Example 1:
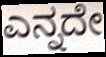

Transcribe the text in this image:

ಎನ್ನದೇ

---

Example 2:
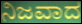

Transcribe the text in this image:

ನಿಜವಾದ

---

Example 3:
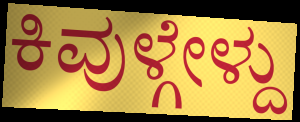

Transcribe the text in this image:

ಕಿವುಳ್ಗೇಳ್ದು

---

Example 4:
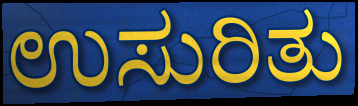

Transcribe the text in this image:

ಉಸುರಿತು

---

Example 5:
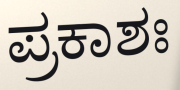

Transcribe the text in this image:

ಪ್ರಕಾಶಃ